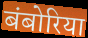
बंबोरिया